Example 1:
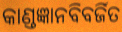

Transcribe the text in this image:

କାଣ୍ଡଜ୍ଞାନବିବର୍ଜିତ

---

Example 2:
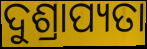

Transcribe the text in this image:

ଦୁଶ୍ରାପ୍ୟତା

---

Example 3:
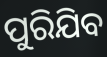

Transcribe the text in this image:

ପୁରିଯିବ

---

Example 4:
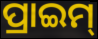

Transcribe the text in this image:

ପ୍ରାଇମ୍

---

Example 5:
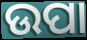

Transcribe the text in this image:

ଉପା